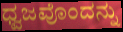
ಧ್ವಜವೊಂದನ್ನು